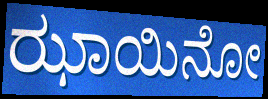
ಝಾಯಿನೋ